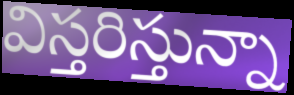
విస్తరిస్తున్నా